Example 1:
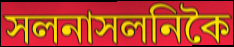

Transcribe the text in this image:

সলনাসলনিকৈ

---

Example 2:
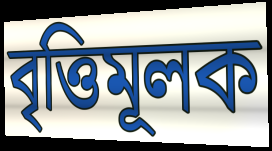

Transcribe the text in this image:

বৃত্তিমূলক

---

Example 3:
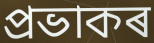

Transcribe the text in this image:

প্ৰভাকৰ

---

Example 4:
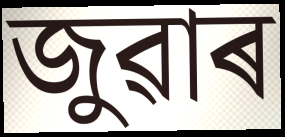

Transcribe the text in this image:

জুৱাৰ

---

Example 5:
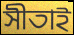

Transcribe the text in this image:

সীতাই